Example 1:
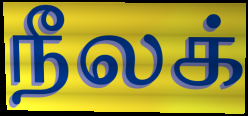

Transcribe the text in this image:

நீலக்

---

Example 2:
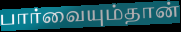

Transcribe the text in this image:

பார்வையும்தான்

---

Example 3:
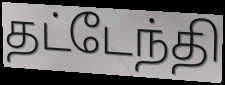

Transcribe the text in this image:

தட்டேந்தி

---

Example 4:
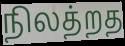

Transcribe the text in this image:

நிலத்றத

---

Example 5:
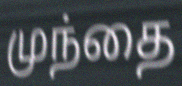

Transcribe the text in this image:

முந்தை